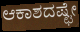
ಆಕಾಶದಷ್ಟೇ